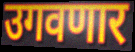
उगवणार